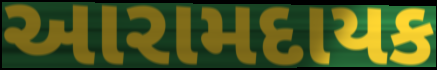
આરામદાયક